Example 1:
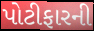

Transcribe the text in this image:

પોટીફારની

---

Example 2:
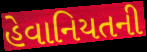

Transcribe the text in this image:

હેવાનિયતની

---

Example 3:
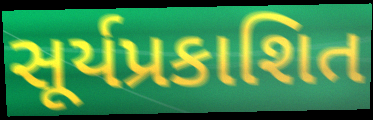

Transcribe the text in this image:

સૂર્યપ્રકાશિત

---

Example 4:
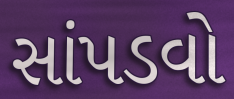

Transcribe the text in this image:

સાંપડવો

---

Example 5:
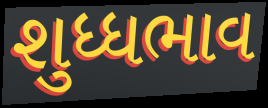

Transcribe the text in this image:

શુધ્ધભાવ